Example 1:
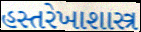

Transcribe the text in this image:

હસ્તરેખાશાસ્ત્ર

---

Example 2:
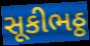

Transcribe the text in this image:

સૂકીભઠ્ઠ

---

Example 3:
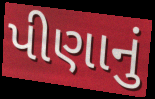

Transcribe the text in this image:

પીણાનું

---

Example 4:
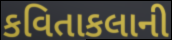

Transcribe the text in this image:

કવિતાકલાની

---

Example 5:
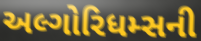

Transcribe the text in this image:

અલ્ગોરિધમ્સની